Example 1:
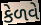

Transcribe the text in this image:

કેળવે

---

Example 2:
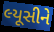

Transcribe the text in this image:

લ્યૂસીને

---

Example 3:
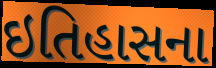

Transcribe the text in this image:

ઇતિહાસના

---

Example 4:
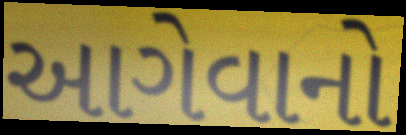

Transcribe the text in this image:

આગેવાનો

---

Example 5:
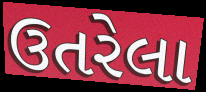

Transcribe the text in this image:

ઉતરેલા